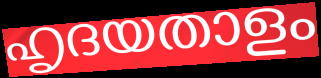
ഹൃദയതാളം